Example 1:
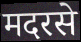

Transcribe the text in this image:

मदरसे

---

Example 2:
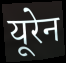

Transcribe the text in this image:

यूरेन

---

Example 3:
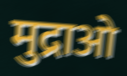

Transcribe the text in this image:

मुद्राओ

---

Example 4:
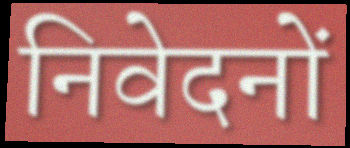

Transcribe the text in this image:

निवेदनों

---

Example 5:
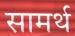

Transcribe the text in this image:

सामर्थ